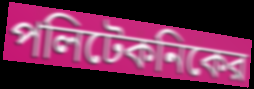
পলিটেকনিকের